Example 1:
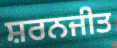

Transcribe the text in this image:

ਸ਼ਰਨਜੀਤ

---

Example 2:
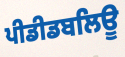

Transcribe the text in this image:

ਪੀਡੀਡਬਲਿਊ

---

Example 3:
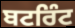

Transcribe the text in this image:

ਬਟਰਿੰਟ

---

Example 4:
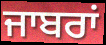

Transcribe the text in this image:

ਜਾਬਰਾਂ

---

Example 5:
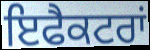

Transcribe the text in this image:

ਇਫੈਕਟਰਾਂ